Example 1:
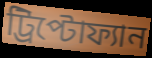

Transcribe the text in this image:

ট্রিপ্টোফ্যান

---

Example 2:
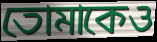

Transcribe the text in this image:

তোমাকেও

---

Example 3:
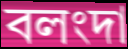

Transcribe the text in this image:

বলংদা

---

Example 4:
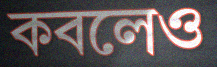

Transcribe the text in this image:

কবলেও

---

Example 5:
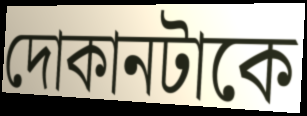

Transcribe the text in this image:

দোকানটাকে